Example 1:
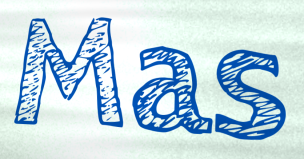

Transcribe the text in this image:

Mas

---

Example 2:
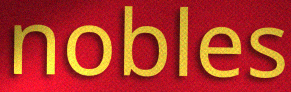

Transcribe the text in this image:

nobles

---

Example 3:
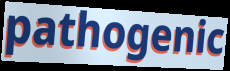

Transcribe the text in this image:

pathogenic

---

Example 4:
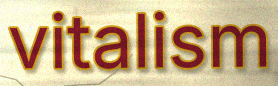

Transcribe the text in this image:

vitalism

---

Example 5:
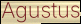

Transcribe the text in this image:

Agustus